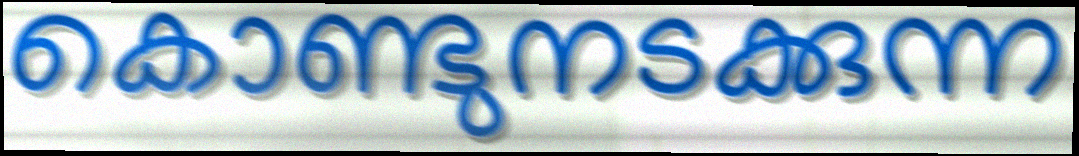
കൊണ്ടുനടക്കുന്ന